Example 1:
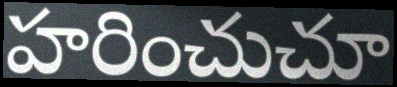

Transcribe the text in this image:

హరించుచూ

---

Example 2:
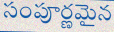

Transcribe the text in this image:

సంపూర్ణమైన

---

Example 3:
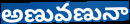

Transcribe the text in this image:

అణువణునా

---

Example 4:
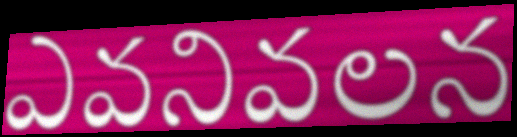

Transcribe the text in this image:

ఎవనివలన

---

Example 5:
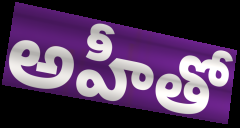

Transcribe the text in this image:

అహీతో